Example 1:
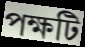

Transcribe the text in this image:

পক্ষটি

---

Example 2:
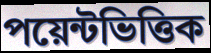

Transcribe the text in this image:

পয়েন্টভিত্তিক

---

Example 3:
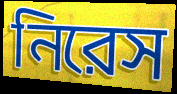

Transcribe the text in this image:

নিরেস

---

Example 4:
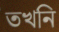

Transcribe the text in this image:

তখনি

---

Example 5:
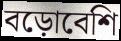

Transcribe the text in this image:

বড়োবেশি